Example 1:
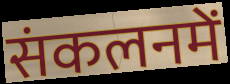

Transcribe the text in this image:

संकलनमें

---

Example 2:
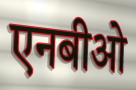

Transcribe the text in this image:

एनबीओ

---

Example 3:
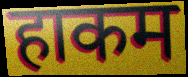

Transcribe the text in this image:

हाकम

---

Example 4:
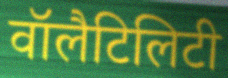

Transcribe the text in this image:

वॉलैटिलिटी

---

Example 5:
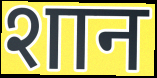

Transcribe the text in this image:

शान